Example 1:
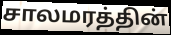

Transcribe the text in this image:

சாலமரத்தின்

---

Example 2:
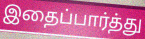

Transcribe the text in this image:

இதைப்பார்த்து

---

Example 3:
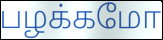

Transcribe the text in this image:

பழக்கமோ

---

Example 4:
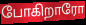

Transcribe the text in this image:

போகிறாரோ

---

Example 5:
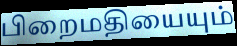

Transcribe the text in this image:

பிறைமதியையும்